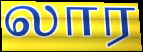
லார